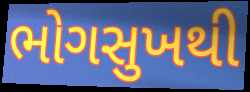
ભોગસુખથી